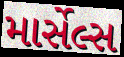
માર્સેલ્સ